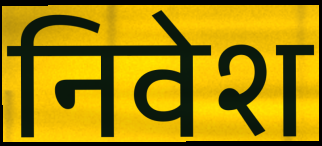
निवेश